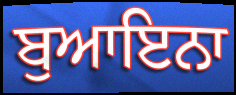
ਬੁਆਇਨਾ